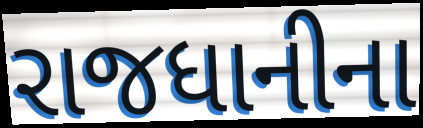
રાજધાનીના